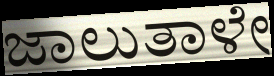
ಜಾಲುತಾಳೇ